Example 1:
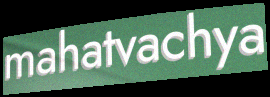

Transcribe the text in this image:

mahatvachya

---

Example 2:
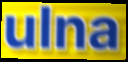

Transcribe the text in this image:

ulna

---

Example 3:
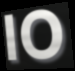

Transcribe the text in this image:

IO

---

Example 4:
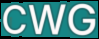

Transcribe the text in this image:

CWG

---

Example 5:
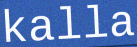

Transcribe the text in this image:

kalla